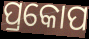
ପ୍ରକୋପ